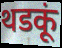
थडकूं